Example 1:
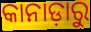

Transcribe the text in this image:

କାନାଡ଼ାରୁ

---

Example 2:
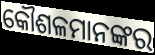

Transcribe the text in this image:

କୌଶଳମାନଙ୍କର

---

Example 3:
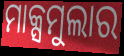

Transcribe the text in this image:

ମାକ୍ସମୁଲାର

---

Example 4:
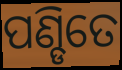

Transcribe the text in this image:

ପଣ୍ଡିତେ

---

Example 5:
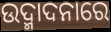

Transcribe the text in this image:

ଉଦ୍ମାଦନାରେ